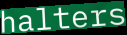
halters